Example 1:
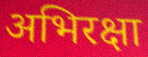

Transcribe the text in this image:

अभिरक्षा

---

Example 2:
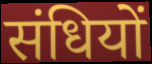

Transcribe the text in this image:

संधियों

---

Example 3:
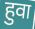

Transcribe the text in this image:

हुवा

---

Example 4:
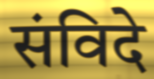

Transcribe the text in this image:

संविदे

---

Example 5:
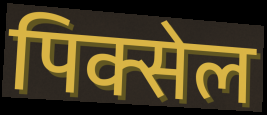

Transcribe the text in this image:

पिक्सेल